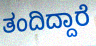
ತಂದಿದ್ದಾರೆ